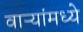
वाऱ्यांमध्ये